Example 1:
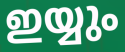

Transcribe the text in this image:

ഇയ്യും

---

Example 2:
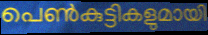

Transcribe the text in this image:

പെൺകുട്ടികളുമായി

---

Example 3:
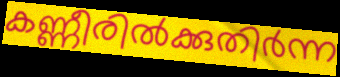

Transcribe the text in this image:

കണ്ണീരിൽക്കുതിർന്ന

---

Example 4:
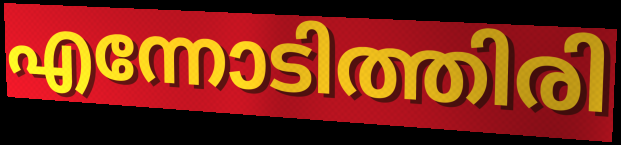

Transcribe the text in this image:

എന്നോടിത്തിരി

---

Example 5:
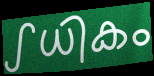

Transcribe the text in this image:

ഽധികം